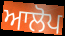
ਆਲੋਪ